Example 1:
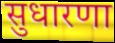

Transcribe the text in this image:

सुधारणा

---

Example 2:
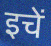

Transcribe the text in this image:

इचें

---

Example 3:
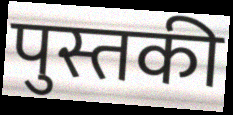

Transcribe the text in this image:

पुस्तकी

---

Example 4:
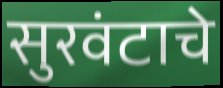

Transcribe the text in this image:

सुरवंटाचे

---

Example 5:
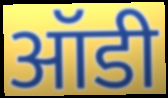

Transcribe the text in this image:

ऑडी